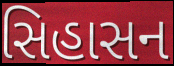
સિહાસન